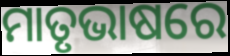
ମାତୃଭାଷରେ